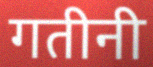
गतीनी